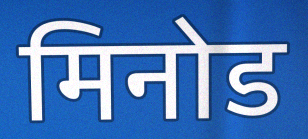
मिनोड